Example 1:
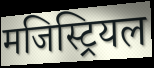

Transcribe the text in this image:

मजिस्ट्रियल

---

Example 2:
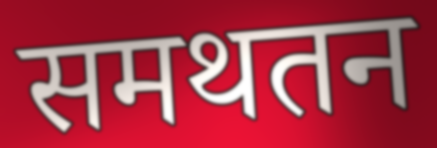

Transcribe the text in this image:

समथतन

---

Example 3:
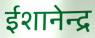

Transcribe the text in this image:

ईशानेन्द्र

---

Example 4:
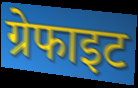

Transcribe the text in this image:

ग्रेफाइट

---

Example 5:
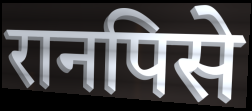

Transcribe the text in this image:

रानपिसे